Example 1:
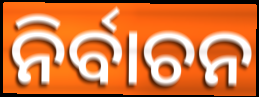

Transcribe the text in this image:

ନିର୍ବାଚନ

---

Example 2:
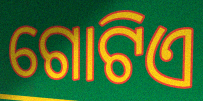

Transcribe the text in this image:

ଗୋଟିଏ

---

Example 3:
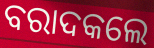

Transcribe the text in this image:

ବରାଦକଲେ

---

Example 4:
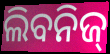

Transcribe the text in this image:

ଲିବନିଜ୍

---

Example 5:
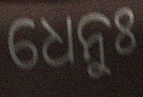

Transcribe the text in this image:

ଧେନୁଃ